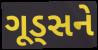
ગૂડ્સને